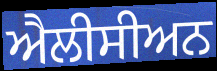
ਐਲੀਸੀਅਨ